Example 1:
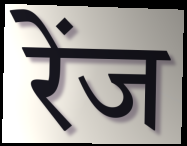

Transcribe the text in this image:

रेंज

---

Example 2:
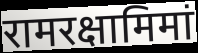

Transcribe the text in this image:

रामरक्षामिमां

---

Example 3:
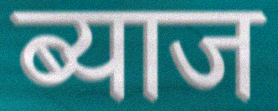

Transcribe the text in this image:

ब्याज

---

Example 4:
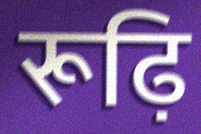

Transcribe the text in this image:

रूढ़ि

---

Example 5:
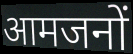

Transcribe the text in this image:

आमजनों